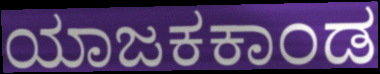
ಯಾಜಕಕಾಂಡ